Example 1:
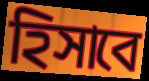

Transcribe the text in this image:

হিসাবে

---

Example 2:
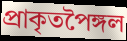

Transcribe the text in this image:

প্ৰাকৃতপৈঙ্গল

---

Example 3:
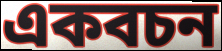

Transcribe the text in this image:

একবচন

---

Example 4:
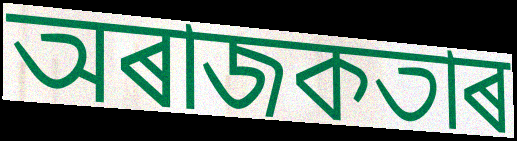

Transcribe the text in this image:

অৰাজকতাৰ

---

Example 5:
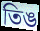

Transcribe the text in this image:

তিঙ